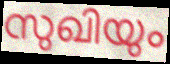
സുഖിയും